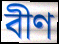
বীণ